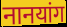
नानयांग